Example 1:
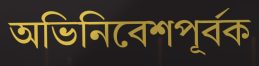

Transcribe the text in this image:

অভিনিবেশপূর্বক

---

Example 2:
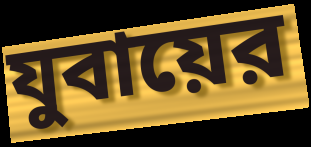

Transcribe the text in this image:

যুবায়ের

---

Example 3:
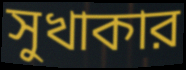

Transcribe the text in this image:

সুখাকার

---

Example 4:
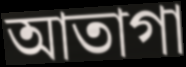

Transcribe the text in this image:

আতাগা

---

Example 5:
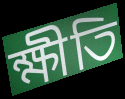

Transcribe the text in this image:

ক্ষীতি